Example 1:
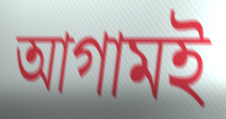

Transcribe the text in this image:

আগামই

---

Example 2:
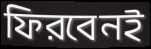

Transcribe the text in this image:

ফিরবেনই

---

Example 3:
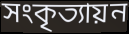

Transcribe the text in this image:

সংকৃত্যায়ন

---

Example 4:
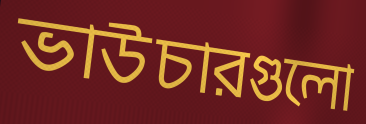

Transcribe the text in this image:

ভাউচারগুলো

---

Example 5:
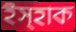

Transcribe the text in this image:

ইস্‌হাক